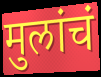
मुलांचं